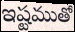
ఇష్టముతో